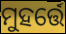
ମୁହର୍ତ୍ତେ